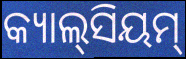
କ୍ୟାଲ୍‌ସିୟମ୍